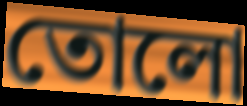
তোলো